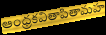
ఆంధ్రకవితాపితామహ